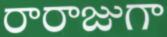
రారాజుగా